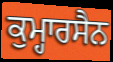
ਕੁਮ੍ਹਾਰਸੈਨ